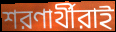
শরণার্থীরাই